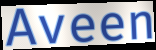
Aveen